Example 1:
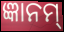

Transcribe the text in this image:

ଜ୍ଞାନମ୍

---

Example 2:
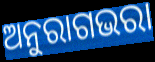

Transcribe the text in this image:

ଅନୁରାଗଭରା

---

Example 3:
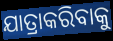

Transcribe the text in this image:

ଯାତ୍ରାକରିବାକୁ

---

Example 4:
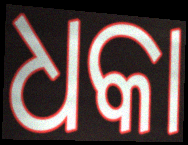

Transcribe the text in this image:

ଧକା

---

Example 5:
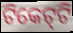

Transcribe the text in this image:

ଟିକେଟ୍‌ଟି